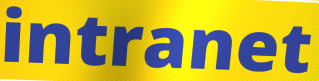
intranet